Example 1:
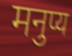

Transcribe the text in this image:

मनुप्य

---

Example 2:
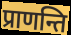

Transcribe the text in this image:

प्राणन्ति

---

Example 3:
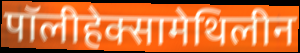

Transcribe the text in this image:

पॉलीहेक्सामेथिलीन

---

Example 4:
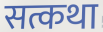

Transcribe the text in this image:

सत्कथा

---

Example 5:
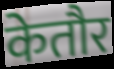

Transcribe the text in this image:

केतौर